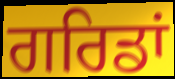
ਗਰਿਡਾਂ